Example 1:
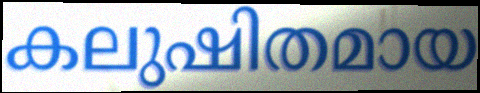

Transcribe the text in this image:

കലുഷിതമായ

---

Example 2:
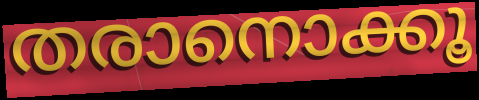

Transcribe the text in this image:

തരാനൊക്കൂ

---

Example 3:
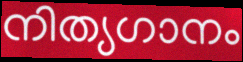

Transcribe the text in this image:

നിത്യഗാനം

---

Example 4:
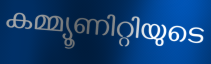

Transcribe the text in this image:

കമ്മ്യൂണിറ്റിയുടെ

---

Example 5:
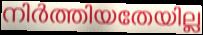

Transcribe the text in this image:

നിർത്തിയതേയില്ല